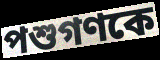
পশুগণকে